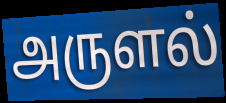
அருளல்